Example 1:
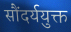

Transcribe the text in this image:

सौंदर्ययुक्त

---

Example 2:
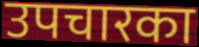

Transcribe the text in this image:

उपचारका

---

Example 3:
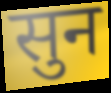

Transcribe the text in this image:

सुन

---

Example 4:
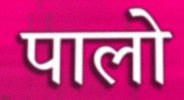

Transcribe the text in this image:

पालो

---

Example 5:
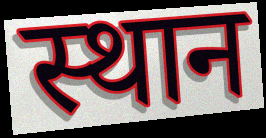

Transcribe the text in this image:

स्थान